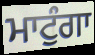
ਮਾਟੁੰਗਾ